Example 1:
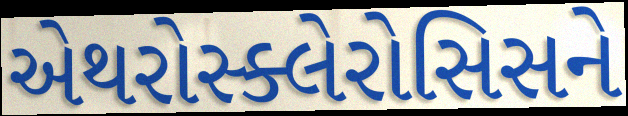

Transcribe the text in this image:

એથરોસ્ક્લેરોસિસને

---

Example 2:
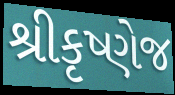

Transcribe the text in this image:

શ્રીકૃષ્ણેજ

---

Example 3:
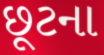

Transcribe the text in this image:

છૂટના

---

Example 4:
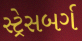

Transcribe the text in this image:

સ્ટ્રેસબર્ગ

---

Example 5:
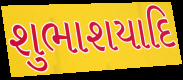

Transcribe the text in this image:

શુભાશયાદિ